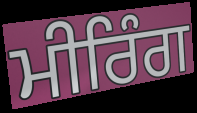
ਮੀਰਿੰਗ